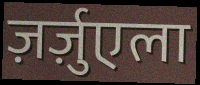
ज़र्ज़ुएला